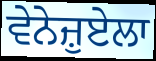
ਵੇਨੇਜ਼ੁਏਲਾ